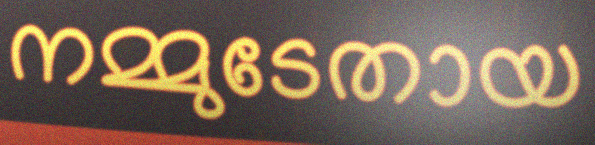
നമ്മുടേതായ